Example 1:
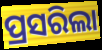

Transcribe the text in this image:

ପ୍ରସରିଲା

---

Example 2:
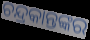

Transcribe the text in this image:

ଚନ୍ଦ୍ରକାନ୍ତଙ୍କର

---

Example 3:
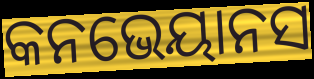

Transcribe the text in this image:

କନଭେୟାନସ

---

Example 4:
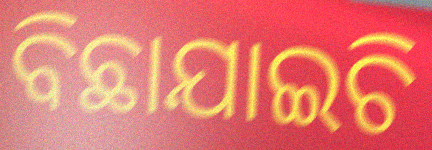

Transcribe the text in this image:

ବିଛାଯାଇଚି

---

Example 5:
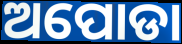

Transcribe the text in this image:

ଅପୋଡା